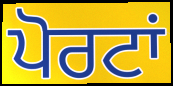
ਪੋਰਟਾਂ